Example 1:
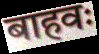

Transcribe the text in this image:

बाहवः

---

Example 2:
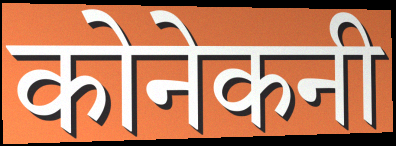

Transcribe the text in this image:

कोनेकनी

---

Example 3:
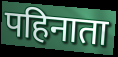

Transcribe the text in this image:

पहिनाता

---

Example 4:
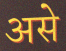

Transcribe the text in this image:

असे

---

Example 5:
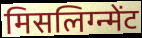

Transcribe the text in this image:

मिसलिग्न्मेंट